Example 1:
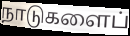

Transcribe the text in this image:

நாடுகளைப்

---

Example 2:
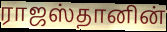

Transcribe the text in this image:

ராஜஸ்தானின்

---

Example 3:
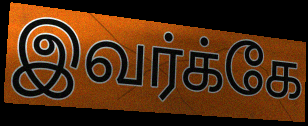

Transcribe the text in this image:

இவர்க்கே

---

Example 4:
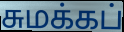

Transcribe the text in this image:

சுமக்கப்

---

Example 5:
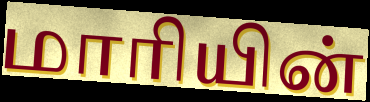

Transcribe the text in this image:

மாரியின்